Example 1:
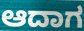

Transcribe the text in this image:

ಆದಾಗ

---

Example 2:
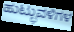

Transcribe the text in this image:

ಹುಟ್ಟುವಳಿಗಳ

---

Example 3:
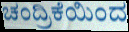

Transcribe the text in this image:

ಚಂದ್ರಿಕೆಯಿಂದ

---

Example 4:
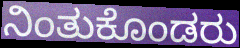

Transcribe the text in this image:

ನಿಂತುಕೊಂಡರು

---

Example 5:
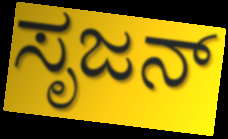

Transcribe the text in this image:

ಸೃಜನ್